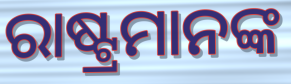
ରାଷ୍ଟ୍ରମାନଙ୍କ